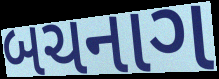
બચનાગ